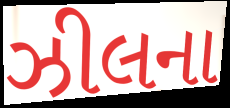
ઝીલના